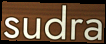
sudra